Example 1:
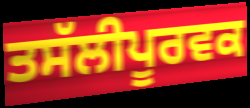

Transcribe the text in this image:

ਤਸੱਲੀਪੂਰਵਕ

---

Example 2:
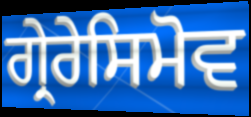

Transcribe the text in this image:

ਗ੍ਰੇਰੇਸਿਮੋਵ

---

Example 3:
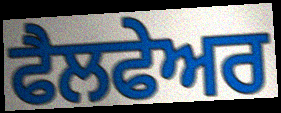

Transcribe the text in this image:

ਫੈਲਫੇਅਰ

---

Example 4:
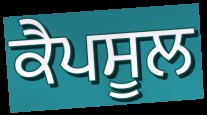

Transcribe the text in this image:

ਕੈਪਸੂਲ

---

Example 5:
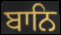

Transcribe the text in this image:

ਬਾਨਿ